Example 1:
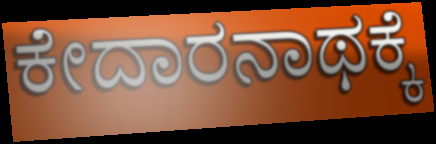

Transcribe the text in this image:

ಕೇದಾರನಾಥಕ್ಕೆ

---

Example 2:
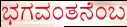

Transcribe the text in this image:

ಭಗವಂತನೆಂಬ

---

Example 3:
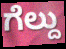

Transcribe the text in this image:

ಗೆಲ್ದು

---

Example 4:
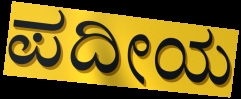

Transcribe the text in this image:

ಪದೀಯ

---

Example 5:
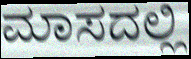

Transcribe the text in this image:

ಮಾಸದಲ್ಲಿ